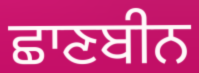
ਛਾਣਬੀਨ